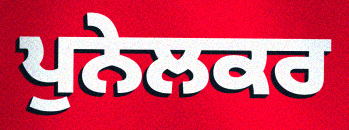
ਪੁਨੇਲਕਰ